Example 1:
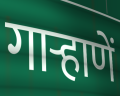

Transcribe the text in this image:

गार्‍हाणें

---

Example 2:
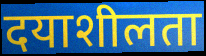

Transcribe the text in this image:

दयाशीलता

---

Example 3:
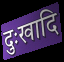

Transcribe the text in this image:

दुःखादि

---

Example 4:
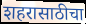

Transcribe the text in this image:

शहरासाठीचा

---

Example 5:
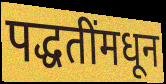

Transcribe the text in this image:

पद्धतींमधून